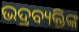
ଭଦ୍ରବ୍ୟକ୍ତିଙ୍କ